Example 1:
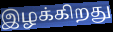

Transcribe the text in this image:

இழக்கிறது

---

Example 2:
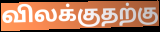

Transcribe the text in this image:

விலக்குதற்கு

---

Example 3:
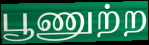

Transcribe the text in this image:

பூணுற்ற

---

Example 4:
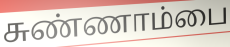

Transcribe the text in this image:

சுண்ணாம்பை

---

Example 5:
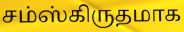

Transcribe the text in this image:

சம்ஸ்கிருதமாக